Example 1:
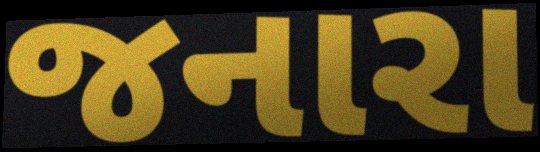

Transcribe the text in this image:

જનારા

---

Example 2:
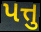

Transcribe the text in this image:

પત્તુ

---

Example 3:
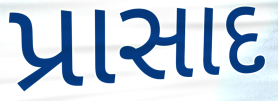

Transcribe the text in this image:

પ્રાસાદ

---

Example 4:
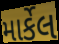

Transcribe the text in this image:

માર્કેલ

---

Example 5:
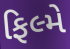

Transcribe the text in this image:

ફિલ્મે